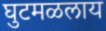
घुटमळलाय